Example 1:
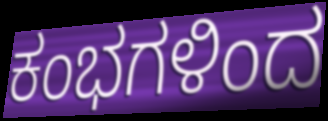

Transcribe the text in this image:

ಕಂಭಗಳಿಂದ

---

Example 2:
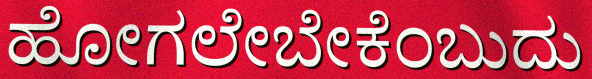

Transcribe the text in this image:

ಹೋಗಲೇಬೇಕೆಂಬುದು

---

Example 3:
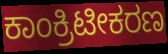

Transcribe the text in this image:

ಕಾಂಕ್ರಿಟೀಕರಣ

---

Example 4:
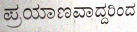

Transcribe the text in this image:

ಪ್ರಯಾಣವಾದ್ದರಿಂದ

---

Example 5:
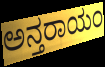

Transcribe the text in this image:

ಅನ್ತರಾಯಂ